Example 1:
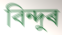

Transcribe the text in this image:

বিন্দুৰ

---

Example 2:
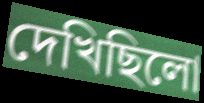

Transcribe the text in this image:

দেখিছিলো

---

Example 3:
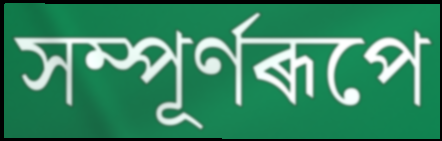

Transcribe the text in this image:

সম্পূৰ্ণৰূপে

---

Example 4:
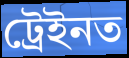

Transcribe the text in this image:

ট্ৰেইনত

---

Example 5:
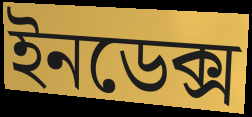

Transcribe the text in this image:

ইনডেক্স